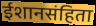
ईशानसंहिता